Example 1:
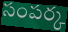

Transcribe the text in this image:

సంపర్క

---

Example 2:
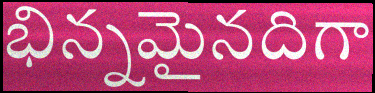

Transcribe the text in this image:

భిన్నమైనదిగా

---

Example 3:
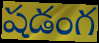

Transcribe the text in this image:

షడంగ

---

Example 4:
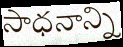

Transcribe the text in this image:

సాధనాన్ని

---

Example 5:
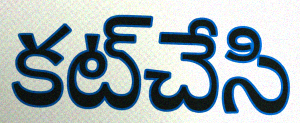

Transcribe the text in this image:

కట్‌చేసి